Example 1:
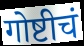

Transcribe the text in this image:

गोष्टीचं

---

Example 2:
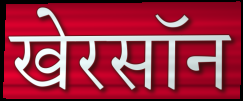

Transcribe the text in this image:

खेरसॉन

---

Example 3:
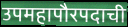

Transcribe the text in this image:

उपमहापौरपदाची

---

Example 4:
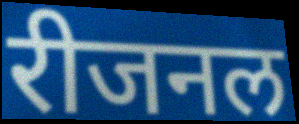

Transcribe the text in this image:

रीजनल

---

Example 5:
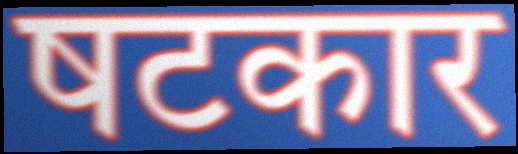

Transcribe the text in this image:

षटकार